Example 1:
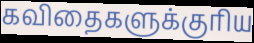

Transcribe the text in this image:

கவிதைகளுக்குரிய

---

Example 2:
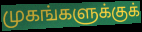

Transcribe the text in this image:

முகங்களுக்குக்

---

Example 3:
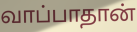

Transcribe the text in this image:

வாப்பாதான்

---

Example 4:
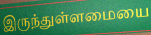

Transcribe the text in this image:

இருந்துள்ளமையை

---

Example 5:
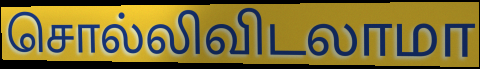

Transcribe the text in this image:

சொல்லிவிடலாமா